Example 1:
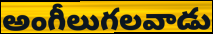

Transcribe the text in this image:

అంగీలుగలవాడు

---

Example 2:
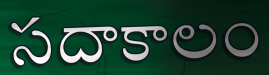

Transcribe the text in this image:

సదాకాలం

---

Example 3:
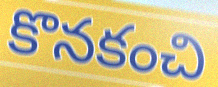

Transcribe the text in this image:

కొనకంచి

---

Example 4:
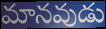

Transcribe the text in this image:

మానవుడు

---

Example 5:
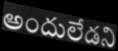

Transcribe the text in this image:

అందులేడని